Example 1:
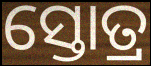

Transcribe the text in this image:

ସ୍ତୋତ୍ର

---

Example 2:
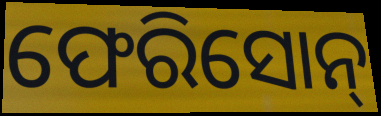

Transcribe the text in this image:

ଫେରିସୋନ୍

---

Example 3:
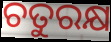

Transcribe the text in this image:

ଚତୁରକ୍ଷ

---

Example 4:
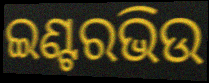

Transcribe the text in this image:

ଇଣ୍ଟରଭିଉ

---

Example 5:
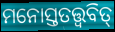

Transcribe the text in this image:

ମନୋସ୍ତତତ୍ତ୍ୱବିତ୍